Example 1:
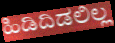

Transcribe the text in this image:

ಹಿಡಿದಿಡಲಿಲ್ಲ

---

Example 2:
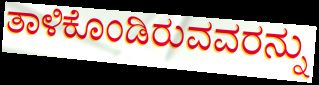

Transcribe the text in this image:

ತಾಳಿಕೊಂಡಿರುವವರನ್ನು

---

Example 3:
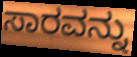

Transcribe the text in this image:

ಸಾರವನ್ನು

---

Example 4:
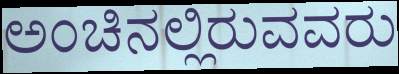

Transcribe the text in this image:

ಅಂಚಿನಲ್ಲಿರುವವರು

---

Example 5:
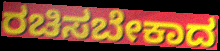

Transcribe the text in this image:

ರಚಿಸಬೇಕಾದ